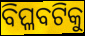
ବିପ୍ଳବଟିକୁ